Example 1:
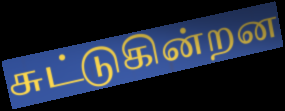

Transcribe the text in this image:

சுட்டுகின்றன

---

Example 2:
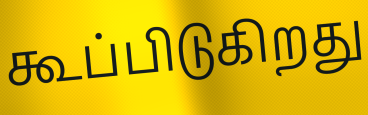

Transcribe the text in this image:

கூப்பிடுகிறது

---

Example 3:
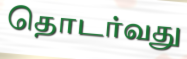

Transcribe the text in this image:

தொடர்வது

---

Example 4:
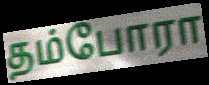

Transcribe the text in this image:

தம்போரா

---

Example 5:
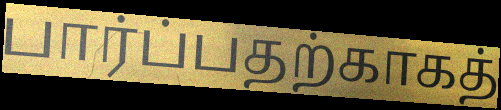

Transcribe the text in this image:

பார்ப்பதற்காகத்